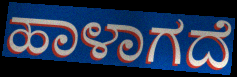
ಹಾಳಾಗದೆ